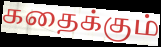
கதைக்கும்